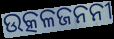
ଉତ୍କଳଜନନୀ